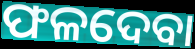
ଫଳଦେବା